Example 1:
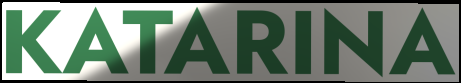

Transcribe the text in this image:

KATARINA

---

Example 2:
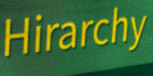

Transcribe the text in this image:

Hirarchy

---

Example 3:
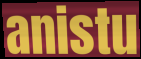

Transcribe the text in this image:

anistu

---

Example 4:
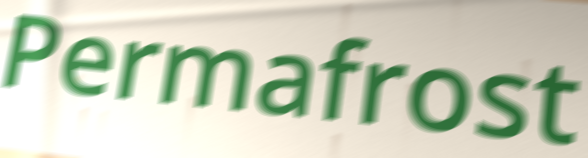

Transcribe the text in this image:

Permafrost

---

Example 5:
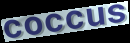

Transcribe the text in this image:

coccus